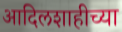
आदिलशाहीच्या